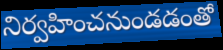
నిర్వహించనుండడంతో